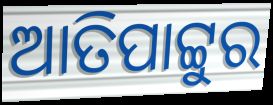
ଆତିପାଟ୍ଟୁର